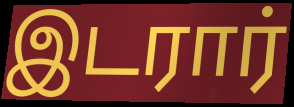
இடரார்